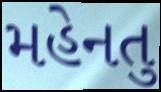
મહેનતુ